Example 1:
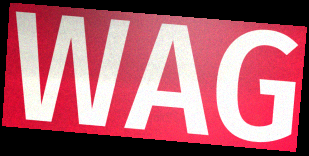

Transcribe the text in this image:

WAG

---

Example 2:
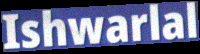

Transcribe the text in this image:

Ishwarlal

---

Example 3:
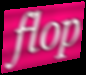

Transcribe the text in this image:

flop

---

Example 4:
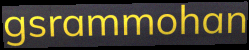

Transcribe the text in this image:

gsrammohan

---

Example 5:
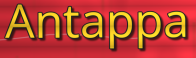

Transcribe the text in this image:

Antappa